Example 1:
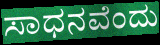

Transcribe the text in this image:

ಸಾಧನವೆಂದು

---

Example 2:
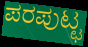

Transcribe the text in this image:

ಪರಪುಟ್ಟ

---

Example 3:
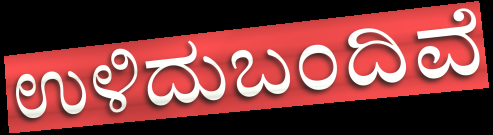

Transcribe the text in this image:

ಉಳಿದುಬಂದಿವೆ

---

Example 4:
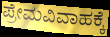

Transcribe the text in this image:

ಪ್ರೇಮವಿವಾಹಕ್ಕೆ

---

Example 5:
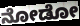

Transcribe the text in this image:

ನೋಡೋ